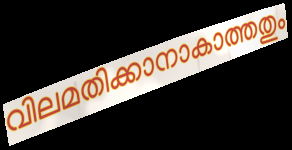
വിലമതിക്കാനാകാത്തതും